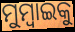
ମୁମ୍ବାଇକୁ